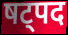
षट्पद